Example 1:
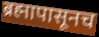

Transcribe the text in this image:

ब्रह्मापासूनच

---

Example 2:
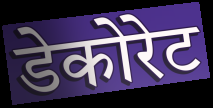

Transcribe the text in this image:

डेकोरेट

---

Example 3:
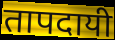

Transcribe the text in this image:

तापदायी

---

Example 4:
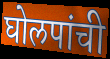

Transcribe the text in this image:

घोलपांची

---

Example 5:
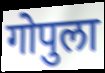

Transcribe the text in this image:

गोपुला